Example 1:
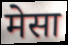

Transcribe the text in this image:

मेसा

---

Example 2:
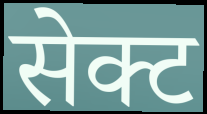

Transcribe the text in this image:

सेक्ट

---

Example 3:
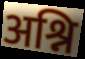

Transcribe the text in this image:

अश्नि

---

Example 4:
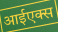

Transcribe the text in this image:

आईएक्स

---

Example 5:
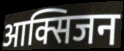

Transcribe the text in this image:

आक्सिजन